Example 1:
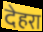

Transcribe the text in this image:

देहरा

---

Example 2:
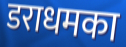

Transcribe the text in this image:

डराधमका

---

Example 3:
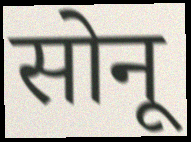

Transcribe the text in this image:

सोनू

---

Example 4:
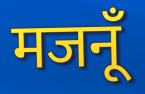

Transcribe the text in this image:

मजनूँ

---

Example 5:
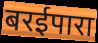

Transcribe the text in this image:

बरईपारा